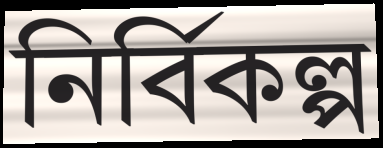
নির্বিকল্প